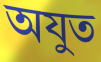
অযুত